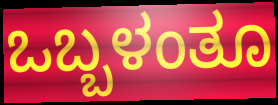
ಒಬ್ಬಳಂತೂ